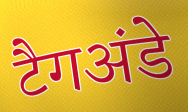
टैगअंडे